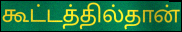
கூட்டத்தில்தான்